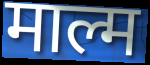
माल्म